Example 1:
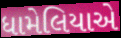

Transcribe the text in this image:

ધામેલિયાએ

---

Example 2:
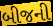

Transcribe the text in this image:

બીજની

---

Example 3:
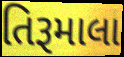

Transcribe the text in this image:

તિરૂમાલા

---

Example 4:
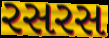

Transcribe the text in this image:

રસરસ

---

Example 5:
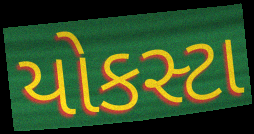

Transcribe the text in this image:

યોકસ્ટા